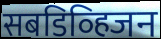
सबडिव्हिजन